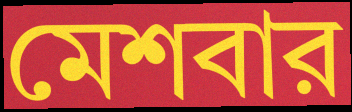
মেশবার